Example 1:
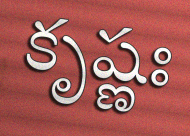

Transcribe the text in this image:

కృష్ణః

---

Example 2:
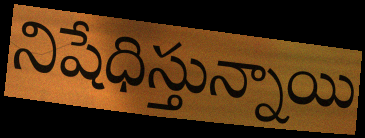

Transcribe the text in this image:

నిషేధిస్తున్నాయి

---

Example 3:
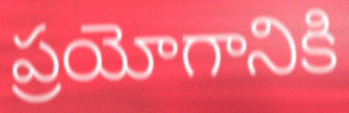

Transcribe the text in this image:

ప్రయోగానికి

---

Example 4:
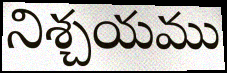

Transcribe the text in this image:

నిశ్చయము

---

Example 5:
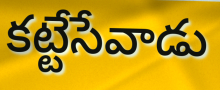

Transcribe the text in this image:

కట్టేసేవాడు